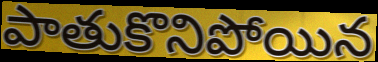
పాతుకొనిపోయిన